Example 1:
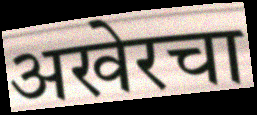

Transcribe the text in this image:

अखेरचा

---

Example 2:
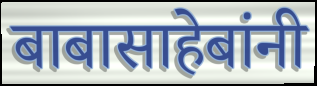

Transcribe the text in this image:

बाबासाहेबांनी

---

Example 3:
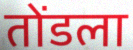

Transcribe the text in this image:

तोंडला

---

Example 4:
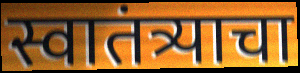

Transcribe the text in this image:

स्वातंत्र्याचा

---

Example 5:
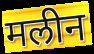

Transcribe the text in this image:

मलीन